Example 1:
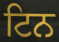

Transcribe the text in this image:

ਟਿਨ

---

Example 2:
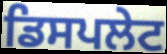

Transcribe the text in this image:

ਡਿਸਪਲੇਟ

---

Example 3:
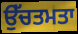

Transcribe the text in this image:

ਉੱਚਤਮਤਾ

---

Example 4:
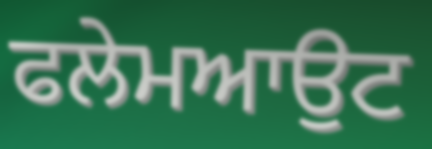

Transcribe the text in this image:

ਫਲੇਮਆਉਟ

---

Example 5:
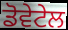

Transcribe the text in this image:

ਡੋਵੇਟੇਲ